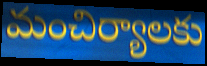
మంచిర్యాలకు